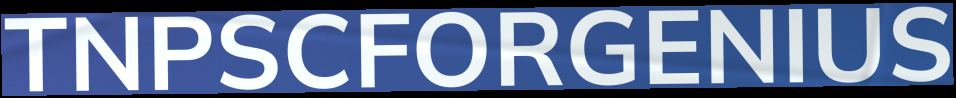
TNPSCFORGENIUS